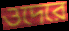
ওদেরে